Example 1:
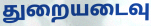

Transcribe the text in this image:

துறையடைவு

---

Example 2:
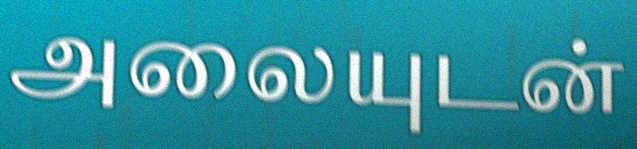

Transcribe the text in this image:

அலையுடன்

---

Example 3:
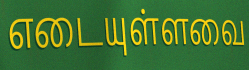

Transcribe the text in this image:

எடையுள்ளவை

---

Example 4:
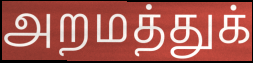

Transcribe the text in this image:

அறமத்துக்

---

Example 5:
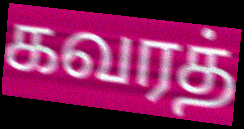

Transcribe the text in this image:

கவரத்